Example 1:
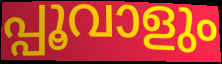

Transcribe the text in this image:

പ്പൂവാളും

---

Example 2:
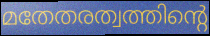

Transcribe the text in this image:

മതേതരത്വത്തിന്റെ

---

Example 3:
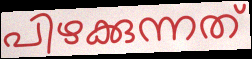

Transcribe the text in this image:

പിഴക്കുന്നത്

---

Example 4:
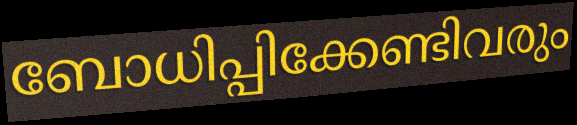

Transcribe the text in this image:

ബോധിപ്പിക്കേണ്ടിവരും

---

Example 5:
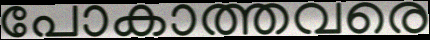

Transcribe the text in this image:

പോകാത്തവരെ